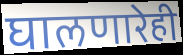
घालणारेही